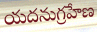
యదనుగ్రహేణ